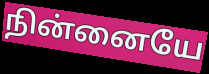
நின்னையே